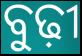
ବୁଢ଼ୀ